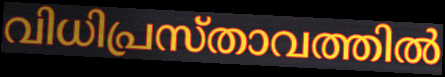
വിധിപ്രസ്താവത്തിൽ